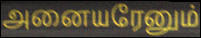
அனையரேனும்